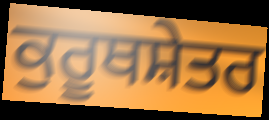
ਕੁਰੂਥਸ਼ੇਤਰ